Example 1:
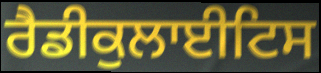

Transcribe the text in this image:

ਰੈਡੀਕੁਲਾਈਟਿਸ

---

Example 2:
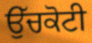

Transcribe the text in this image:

ਉੱਚਕੋਟੀ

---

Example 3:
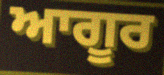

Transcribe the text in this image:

ਆਗੂਰ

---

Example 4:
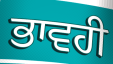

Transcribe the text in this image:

ਭਾਵਹੀ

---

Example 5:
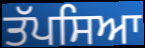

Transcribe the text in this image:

ਤੱਪਸਿਆ